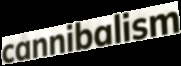
cannibalism